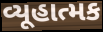
વ્યૂહાત્મક